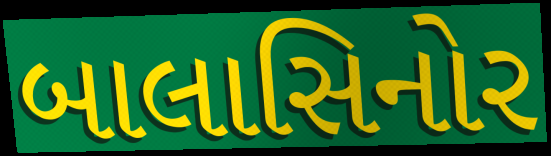
બાલાસિનોર